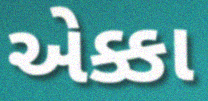
એક્કા